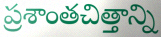
ప్రశాంతచిత్తాన్ని